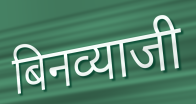
बिनव्याजी